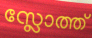
സ്ലോത്ത്